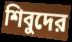
শিবুদের